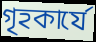
গৃহকার্যে